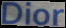
Dior